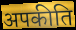
अपकीति